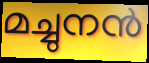
മച്ചുനൻ